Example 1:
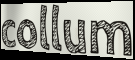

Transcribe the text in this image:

collum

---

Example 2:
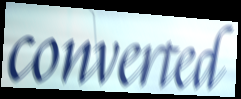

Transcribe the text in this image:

converted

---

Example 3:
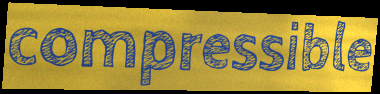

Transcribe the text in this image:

compressible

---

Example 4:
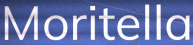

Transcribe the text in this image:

Moritella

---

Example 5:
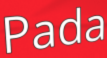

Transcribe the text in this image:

Pada